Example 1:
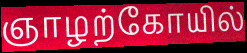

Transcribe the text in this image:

ஞாழற்கோயில்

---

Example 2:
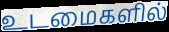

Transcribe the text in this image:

உடமைகளில்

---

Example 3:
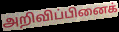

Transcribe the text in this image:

அறிவிப்பினைக்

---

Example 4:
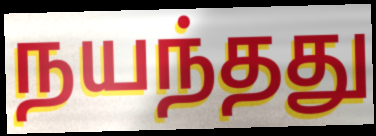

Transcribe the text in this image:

நயந்தது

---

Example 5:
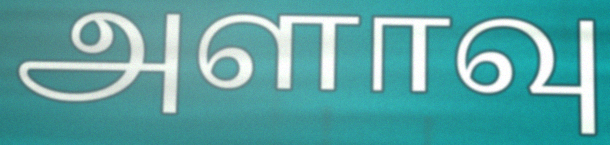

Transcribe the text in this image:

அளாவு